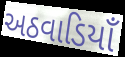
અઠવાડિયાઁ